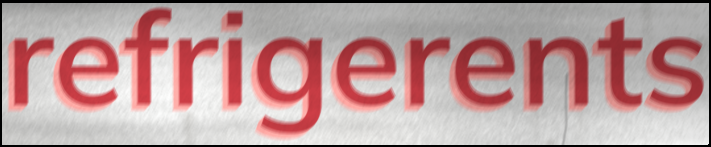
refrigerents